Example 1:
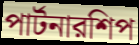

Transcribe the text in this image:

পার্টনারশিপ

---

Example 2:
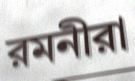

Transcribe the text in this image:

রমনীরা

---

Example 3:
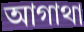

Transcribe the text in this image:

আগাথা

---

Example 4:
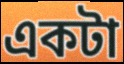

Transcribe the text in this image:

একটা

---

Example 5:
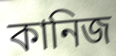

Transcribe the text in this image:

কানিজ